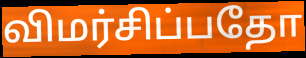
விமர்சிப்பதோ